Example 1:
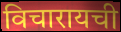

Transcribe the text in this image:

विचारायची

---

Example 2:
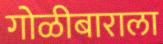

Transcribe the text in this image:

गोळीबाराला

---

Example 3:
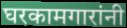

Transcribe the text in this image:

घरकामगारांनी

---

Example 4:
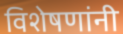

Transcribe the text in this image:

विशेषणांनी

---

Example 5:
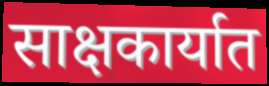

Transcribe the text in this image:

साक्षकार्यात